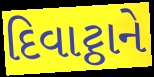
દિવાટ્ઠાને